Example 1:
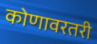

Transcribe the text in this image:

कोणावरतरी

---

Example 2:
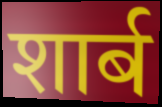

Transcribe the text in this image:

शार्ब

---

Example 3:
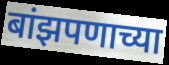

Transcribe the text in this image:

बांझपणाच्या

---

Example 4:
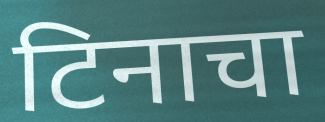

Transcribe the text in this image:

टिनाचा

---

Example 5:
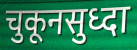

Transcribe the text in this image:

चुकूनसुध्दा